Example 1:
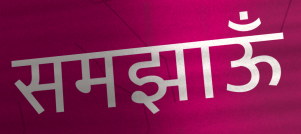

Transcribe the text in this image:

समझाऊँ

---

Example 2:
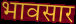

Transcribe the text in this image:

भावसार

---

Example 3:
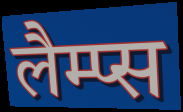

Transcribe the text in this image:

लैम्प्स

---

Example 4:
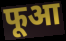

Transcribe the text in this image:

फूआ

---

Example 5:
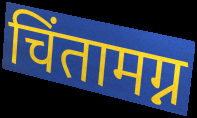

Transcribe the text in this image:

चिंतामग्न